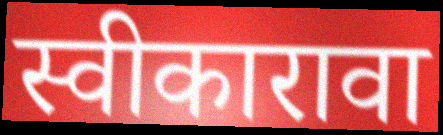
स्वीकारावा